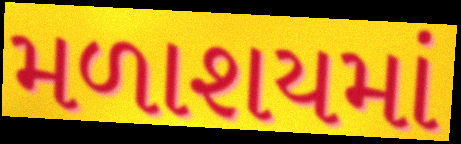
મળાશયમાં